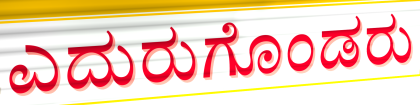
ಎದುರುಗೊಂಡರು